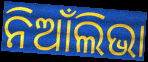
ନିଆଁଲିଭା